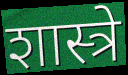
शास्त्रे